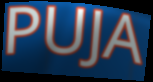
PUJA